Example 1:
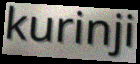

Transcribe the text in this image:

kurinji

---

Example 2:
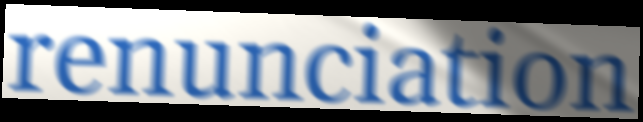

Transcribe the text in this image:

renunciation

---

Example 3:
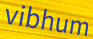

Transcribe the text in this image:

vibhum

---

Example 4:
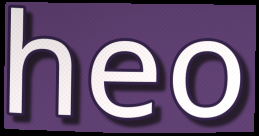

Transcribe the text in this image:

heo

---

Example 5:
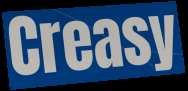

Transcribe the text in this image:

Creasy